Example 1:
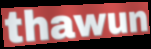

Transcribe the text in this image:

thawun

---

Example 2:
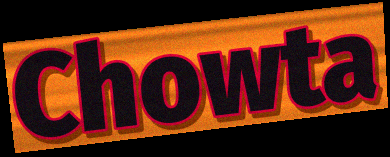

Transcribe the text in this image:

Chowta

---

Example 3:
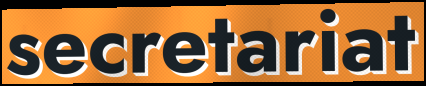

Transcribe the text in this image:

secretariat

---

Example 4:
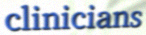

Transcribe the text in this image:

clinicians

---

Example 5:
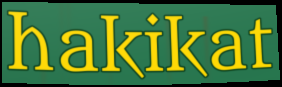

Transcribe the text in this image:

hakikat